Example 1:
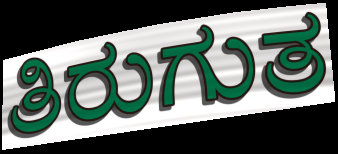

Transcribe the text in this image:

ತಿರುಗುತ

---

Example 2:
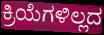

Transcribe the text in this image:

ಕ್ರಿಯೆಗಳಿಲ್ಲದ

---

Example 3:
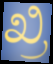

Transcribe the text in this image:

ಖ್ರಿ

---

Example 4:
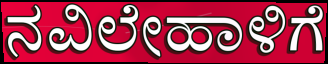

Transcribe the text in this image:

ನವಿಲೇಹಾಳಿಗೆ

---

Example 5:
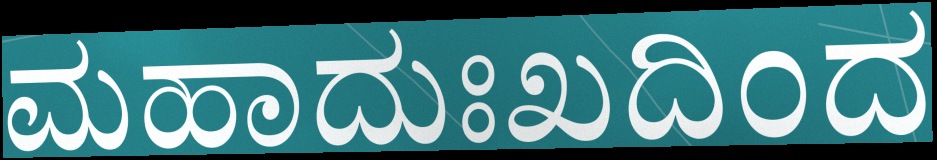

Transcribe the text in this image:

ಮಹಾದುಃಖದಿಂದ